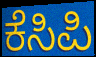
ಕೆಸಿಪಿ